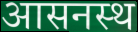
आसनस्थ